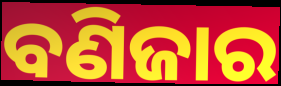
ବଣିଜାର